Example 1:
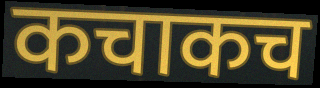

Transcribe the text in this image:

कचाकच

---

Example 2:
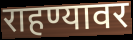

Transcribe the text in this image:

राहण्यावर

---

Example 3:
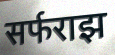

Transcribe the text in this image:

सर्फराझ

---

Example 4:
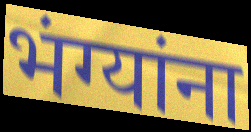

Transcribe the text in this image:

भंग्यांना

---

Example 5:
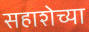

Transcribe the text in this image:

सहाशेच्या